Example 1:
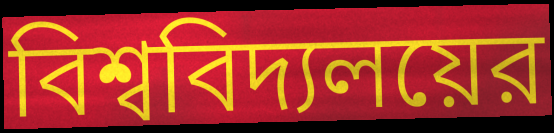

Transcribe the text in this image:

বিশ্ববিদ্যলয়ের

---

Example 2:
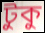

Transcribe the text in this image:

টুকু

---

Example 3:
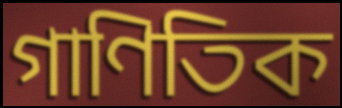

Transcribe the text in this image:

গাণিতিক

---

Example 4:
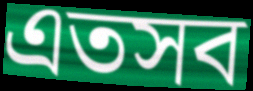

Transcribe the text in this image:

এতসব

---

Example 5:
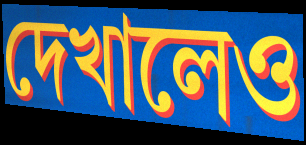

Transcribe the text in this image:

দেখালেও